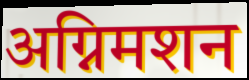
अग्निमशन